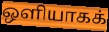
ஒளியாகக்